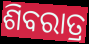
ଶିବରାତ୍ର